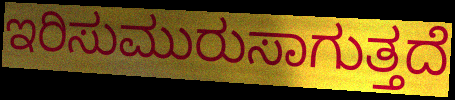
ಇರಿಸುಮುರುಸಾಗುತ್ತದೆ